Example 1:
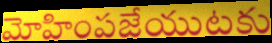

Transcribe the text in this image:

మోహింపజేయుటకు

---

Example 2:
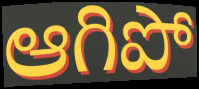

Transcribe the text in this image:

ఆగిపో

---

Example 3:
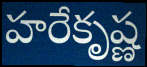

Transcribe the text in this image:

హరేకృష్ణ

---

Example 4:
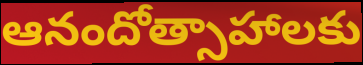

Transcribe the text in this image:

ఆనందోత్సాహాలకు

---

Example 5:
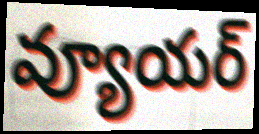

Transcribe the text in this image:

వ్యూయర్